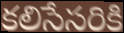
కలిసేసరికి